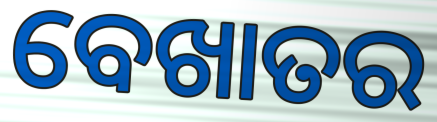
ବେଖାତର